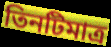
তিনটিমাত্র